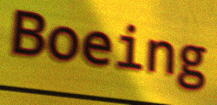
Boeing